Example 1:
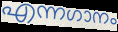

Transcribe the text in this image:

എന്നഗാനം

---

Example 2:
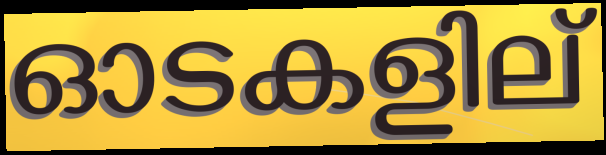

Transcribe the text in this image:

ഓടകളില്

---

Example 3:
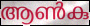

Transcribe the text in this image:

ആൺകു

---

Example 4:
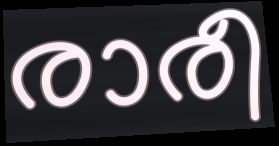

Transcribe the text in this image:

രാരീ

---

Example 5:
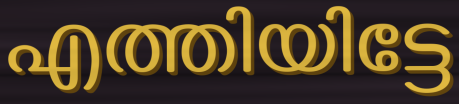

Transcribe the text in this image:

എത്തിയിട്ടേ